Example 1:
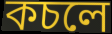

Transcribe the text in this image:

কচলে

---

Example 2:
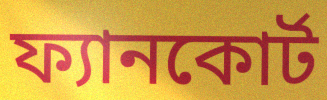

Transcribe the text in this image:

ফ্যানকোর্ট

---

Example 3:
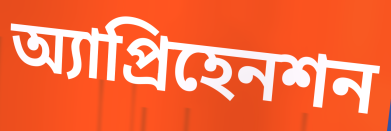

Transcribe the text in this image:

অ্যাপ্রিহেনশন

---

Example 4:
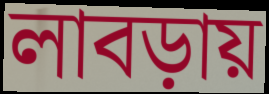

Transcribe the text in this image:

লাবড়ায়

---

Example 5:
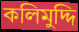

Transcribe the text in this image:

কলিমুদ্দি